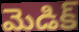
మెడిక్